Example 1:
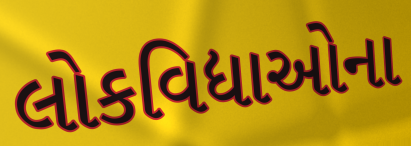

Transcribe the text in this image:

લોકવિદ્યાઓના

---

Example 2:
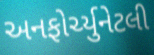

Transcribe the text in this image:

અનફોર્ચ્યુનેટલી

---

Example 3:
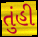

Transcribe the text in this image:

તુંહી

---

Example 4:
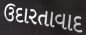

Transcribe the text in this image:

ઉદારતાવાદ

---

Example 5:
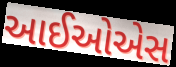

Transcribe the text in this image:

આઈઓએસ